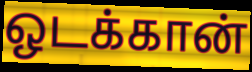
ஒடக்கான்